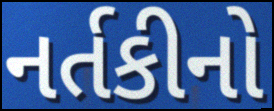
નર્તકીનો